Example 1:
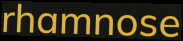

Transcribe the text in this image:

rhamnose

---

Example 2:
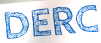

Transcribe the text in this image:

DERC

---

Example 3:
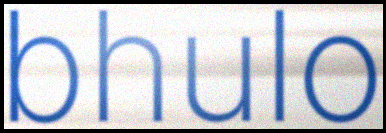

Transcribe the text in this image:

bhulo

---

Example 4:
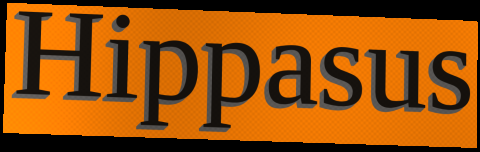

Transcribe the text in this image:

Hippasus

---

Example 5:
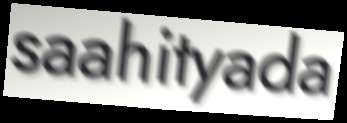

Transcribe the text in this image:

saahityada